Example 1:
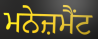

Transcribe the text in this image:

ਮਨੇਜ਼ਮੈਂਟ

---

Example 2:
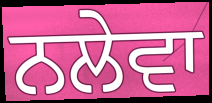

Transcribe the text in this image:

ਨਲੇਵਾ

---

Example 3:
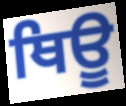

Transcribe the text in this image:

ਥਿਊ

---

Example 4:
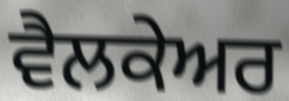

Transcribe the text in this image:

ਵੈਲਕੇਅਰ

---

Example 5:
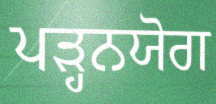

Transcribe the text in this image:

ਪੜ੍ਹਨਯੋਗ